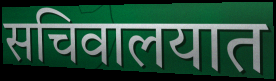
सचिवालयात